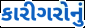
કારીગરોનું